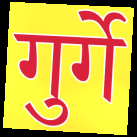
गुर्गे